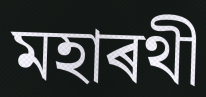
মহাৰথী